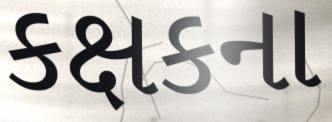
કક્ષકના